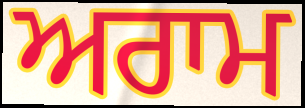
ਅਰਾਮ